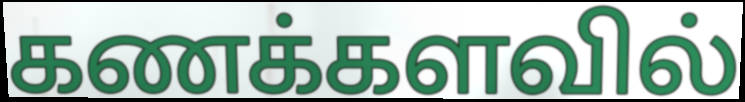
கணக்களவில்